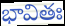
భావితః